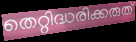
തെറ്റിദ്ധരിക്കരുത്